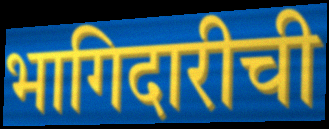
भागिदारीची